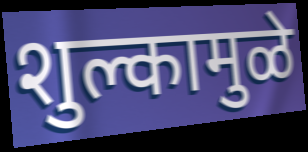
शुल्कामुळे